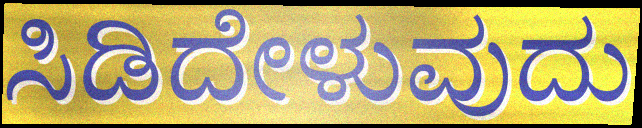
ಸಿಡಿದೇಳುವುದು